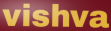
vishva